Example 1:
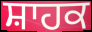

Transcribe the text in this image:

ਸ਼ਾਹਕ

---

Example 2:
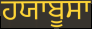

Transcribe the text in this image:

ਹਯਾਬੂਸਾ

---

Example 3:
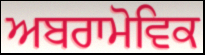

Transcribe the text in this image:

ਅਬਰਾਮੋਵਿਕ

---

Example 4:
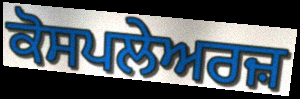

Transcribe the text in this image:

ਕੋਸਪਲੇਅਰਜ਼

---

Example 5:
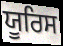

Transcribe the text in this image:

ਯੂਰਿਸ